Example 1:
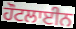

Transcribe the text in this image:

ਹੌਟਲਾਈਨ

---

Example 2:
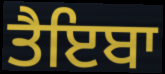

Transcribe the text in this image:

ਤੈਇਬਾ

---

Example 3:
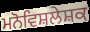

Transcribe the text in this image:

ਮਨੋਵਿਸ਼ਲੇਸ਼ਕ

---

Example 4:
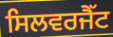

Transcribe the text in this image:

ਸਿਲਵਰਜੈੱਟ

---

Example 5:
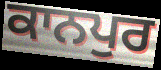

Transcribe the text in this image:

ਕਾਨਪੁਰ